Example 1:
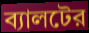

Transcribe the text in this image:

ব্যালটের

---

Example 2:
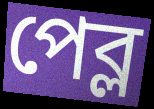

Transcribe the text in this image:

পেব্ল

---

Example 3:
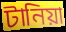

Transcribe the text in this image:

টানিয়া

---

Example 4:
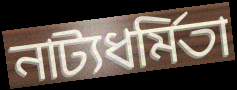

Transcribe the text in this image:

নাট্যধর্মিতা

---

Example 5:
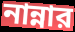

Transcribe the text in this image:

নান্নার